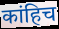
कांहिच